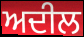
ਅਦੀਲ